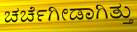
ಚರ್ಚೆಗೀಡಾಗಿತ್ತು